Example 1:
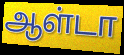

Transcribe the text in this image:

ஆள்டா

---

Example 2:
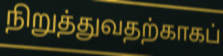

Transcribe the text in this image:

நிறுத்துவதற்காகப்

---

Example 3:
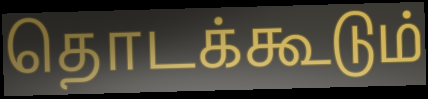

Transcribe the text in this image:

தொடக்கூடும்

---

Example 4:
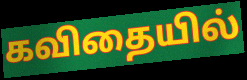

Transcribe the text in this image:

கவிதையில்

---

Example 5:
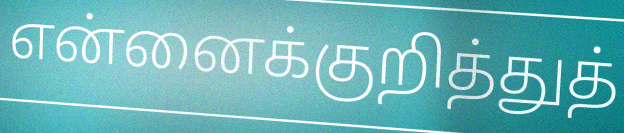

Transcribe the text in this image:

என்னைக்குறித்துத்